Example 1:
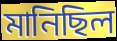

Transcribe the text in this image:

মানিছিল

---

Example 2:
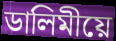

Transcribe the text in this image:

ডালিমীয়ে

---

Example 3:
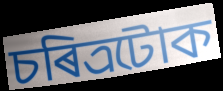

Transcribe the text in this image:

চৰিত্ৰটোক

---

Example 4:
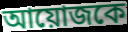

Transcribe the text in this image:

আয়োজকে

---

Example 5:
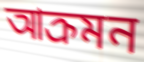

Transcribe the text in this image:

আক্ৰমন